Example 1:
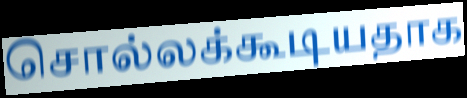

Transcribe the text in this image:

சொல்லக்கூடியதாக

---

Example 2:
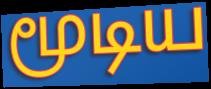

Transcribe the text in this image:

மூடிய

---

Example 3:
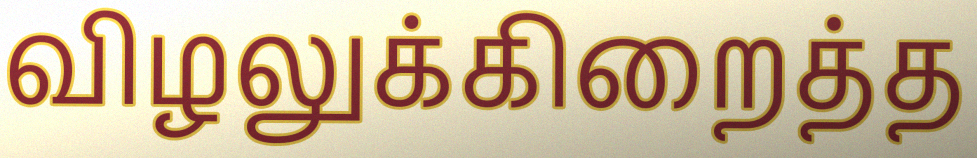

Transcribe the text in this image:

விழலுக்கிறைத்த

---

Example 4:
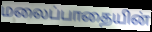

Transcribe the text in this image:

மலைப்பாதையின்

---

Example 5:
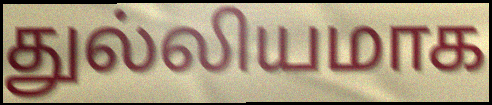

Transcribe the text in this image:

துல்லியமாக